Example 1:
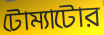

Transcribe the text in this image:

টোম্যাটোর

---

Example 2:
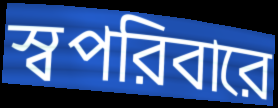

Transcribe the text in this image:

স্বপরিবারে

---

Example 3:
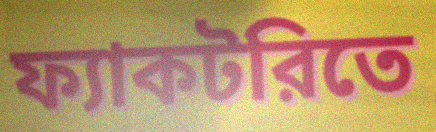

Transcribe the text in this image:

ফ্যাকটরিতে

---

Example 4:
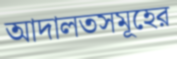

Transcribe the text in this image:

আদালতসমূহের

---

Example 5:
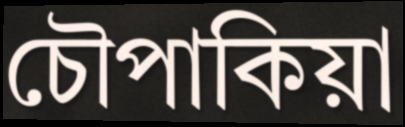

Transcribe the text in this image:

চৌপাকিয়া